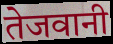
तेजवानी